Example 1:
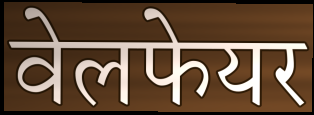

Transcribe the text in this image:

वेलफेयर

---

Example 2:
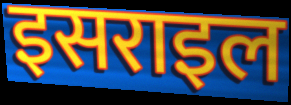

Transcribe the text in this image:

इसराइल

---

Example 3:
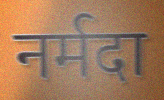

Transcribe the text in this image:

नर्मदा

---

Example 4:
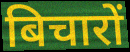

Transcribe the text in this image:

बिचारों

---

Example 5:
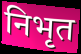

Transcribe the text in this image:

निभृत